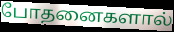
போதனைகளால்